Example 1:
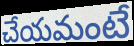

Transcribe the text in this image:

చేయమంటే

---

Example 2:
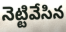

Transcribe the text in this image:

నెట్టివేసిన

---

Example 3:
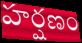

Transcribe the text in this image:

హర్షణం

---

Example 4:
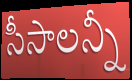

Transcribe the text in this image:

సీసాలన్నీ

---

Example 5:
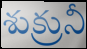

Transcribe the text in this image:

శుక్రునీ